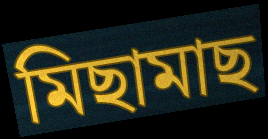
মিছামাছ